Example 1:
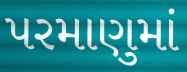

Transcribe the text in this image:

પરમાણુમાં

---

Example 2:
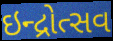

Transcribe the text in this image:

ઇન્દ્રોત્સવ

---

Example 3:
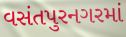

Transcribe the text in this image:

વસંતપુરનગરમાં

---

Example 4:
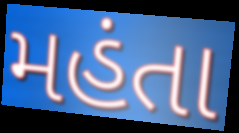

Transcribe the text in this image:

મહંતા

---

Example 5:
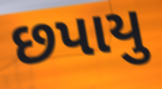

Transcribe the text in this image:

છપાયુ